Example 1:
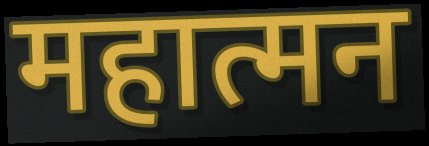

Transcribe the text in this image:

महात्मन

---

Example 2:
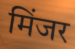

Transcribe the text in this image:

मिंजर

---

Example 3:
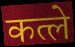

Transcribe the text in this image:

कत्ले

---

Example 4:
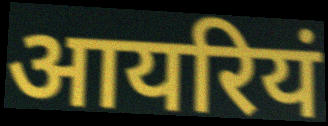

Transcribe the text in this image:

आयरियं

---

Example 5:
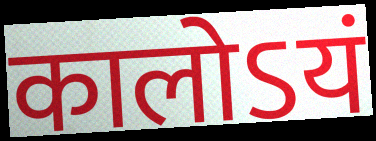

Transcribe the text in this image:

कालोऽयं